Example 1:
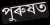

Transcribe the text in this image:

পুৰুষত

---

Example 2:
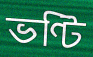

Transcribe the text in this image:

ভণ্টি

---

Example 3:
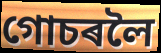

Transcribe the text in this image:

গোচৰলৈ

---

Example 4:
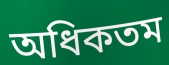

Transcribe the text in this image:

অধিকতম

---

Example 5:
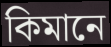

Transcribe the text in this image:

কিমানে